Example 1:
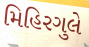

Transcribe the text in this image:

મિહિરગુલે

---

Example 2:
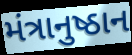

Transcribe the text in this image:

મંત્રાનુષ્ઠાન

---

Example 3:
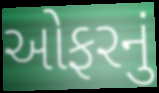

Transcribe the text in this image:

ઓફરનું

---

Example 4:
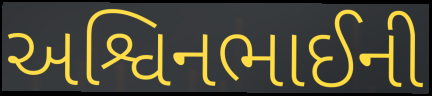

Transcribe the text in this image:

અશ્વિનભાઈની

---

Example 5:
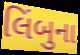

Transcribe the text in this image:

લિંબુના